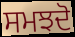
ਸਮਝਦੋ